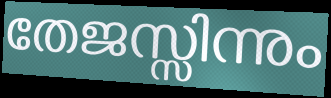
തേജസ്സിന്നും